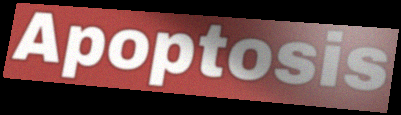
Apoptosis